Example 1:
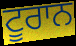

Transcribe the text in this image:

ਟੂਰਾਨ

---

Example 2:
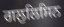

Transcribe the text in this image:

ਗਲੁਲਿਸਿਨ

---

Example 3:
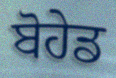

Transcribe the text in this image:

ਬੋਹੇਡ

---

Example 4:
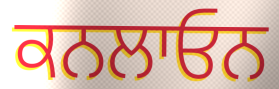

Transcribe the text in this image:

ਕਨਲਾਓਨ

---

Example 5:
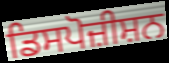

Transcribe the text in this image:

ਡਿਸਪੋਜ਼ੀਸ਼ਨ